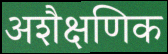
अशैक्षणिक